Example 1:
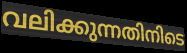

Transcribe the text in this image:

വലിക്കുന്നതിനിടെ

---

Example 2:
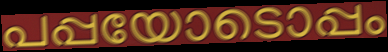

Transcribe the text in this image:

പപ്പയോടൊപ്പം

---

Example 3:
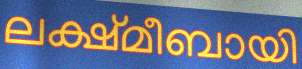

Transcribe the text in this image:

ലക്ഷ്മീബായി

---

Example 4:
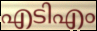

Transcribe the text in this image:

എടിഎം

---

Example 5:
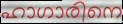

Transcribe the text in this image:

ഹാഗാരിനെ